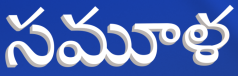
సమూళ